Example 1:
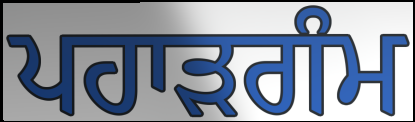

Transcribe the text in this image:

ਪਹਾੜਗੰਮ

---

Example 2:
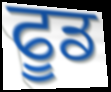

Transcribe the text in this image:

ਫੂਡ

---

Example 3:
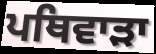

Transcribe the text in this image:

ਪਥਿਵਾੜਾ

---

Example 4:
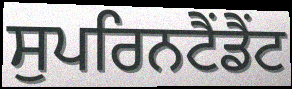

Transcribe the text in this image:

ਸੁਪਰਿਨਟੈਂਡੈਂਟ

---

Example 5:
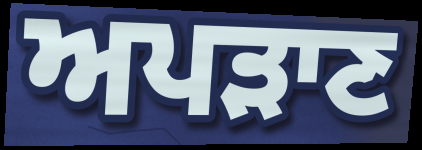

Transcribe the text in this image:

ਅਪੜਾਣ